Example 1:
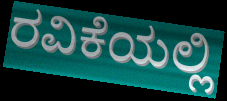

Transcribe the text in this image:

ರವಿಕೆಯಲ್ಲಿ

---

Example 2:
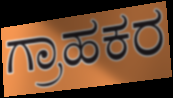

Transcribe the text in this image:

ಗ್ರಾಹಕರ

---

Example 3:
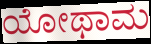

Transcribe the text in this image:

ಯೋಥಾಮ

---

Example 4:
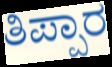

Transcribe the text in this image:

ತಿಪ್ಪಾರ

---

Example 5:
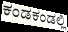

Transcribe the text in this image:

ಕಂಡಕಂಡಲ್ಲಿ